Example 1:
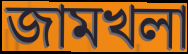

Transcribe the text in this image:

জামখলা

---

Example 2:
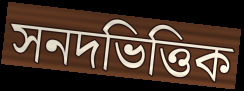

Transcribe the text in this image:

সনদভিত্তিক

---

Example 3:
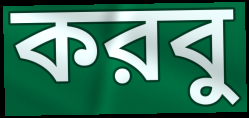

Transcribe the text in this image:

করবু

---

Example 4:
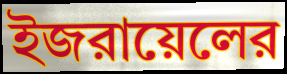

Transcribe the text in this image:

ইজরায়েলের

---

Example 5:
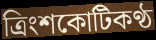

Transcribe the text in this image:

ত্রিংশকোটিকণ্ঠ